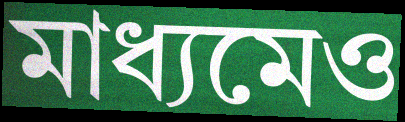
মাধ্যমেও